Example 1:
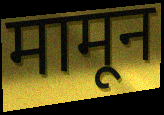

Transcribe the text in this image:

मामून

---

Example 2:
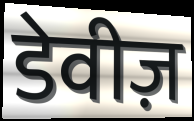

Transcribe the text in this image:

डेवीज़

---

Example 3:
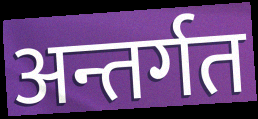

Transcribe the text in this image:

अन्तर्गत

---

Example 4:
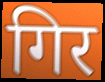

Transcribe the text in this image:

गिर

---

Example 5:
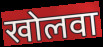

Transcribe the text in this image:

खोलवा